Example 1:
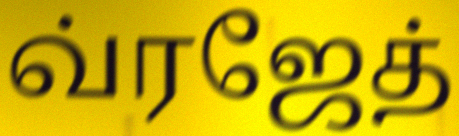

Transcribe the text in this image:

வ்ரஜேத்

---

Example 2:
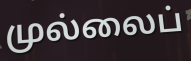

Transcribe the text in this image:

முல்லைப்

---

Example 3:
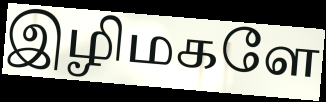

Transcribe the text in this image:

இழிமகளே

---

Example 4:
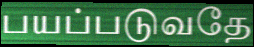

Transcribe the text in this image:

பயப்படுவதே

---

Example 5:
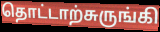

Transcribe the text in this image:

தொட்டாற்சுருங்கி